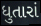
ધુતારાં